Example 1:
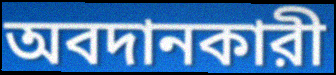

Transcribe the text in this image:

অবদানকারী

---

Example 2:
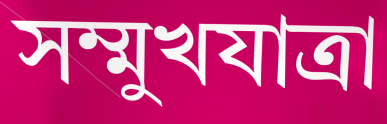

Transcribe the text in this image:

সম্মুখযাত্রা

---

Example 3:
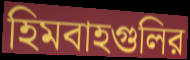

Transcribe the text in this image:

হিমবাহগুলির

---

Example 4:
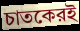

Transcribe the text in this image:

চাতকেরই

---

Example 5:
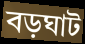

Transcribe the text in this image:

বড়ঘাট